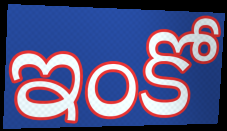
ఇంకో